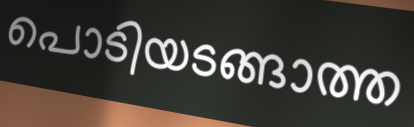
പൊടിയടങ്ങാത്ത